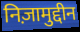
निज़ामुद्दीन